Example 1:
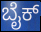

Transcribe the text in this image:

ಬೈಕ್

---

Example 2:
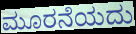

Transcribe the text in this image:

ಮೂರನೆಯದು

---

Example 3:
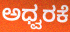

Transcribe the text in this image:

ಅಧ್ವರಕೆ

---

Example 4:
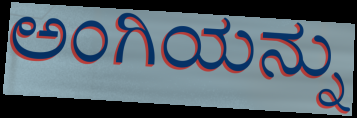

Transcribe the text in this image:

ಅಂಗಿಯನ್ನು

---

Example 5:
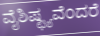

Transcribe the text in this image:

ವೈಶಿಷ್ಟ್ಯವೆಂದರೆ